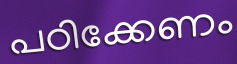
പഠിക്കേണം